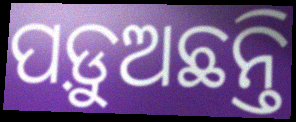
ପଡ଼ୁଅଛନ୍ତି